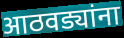
आठवड्यांना